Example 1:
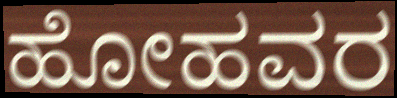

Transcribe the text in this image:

ಹೋಹವರ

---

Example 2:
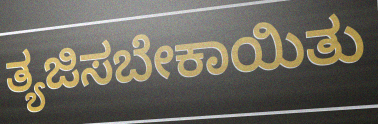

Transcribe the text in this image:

ತ್ಯಜಿಸಬೇಕಾಯಿತು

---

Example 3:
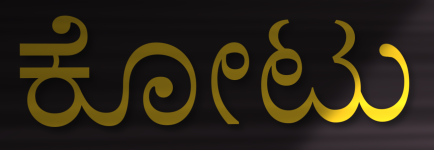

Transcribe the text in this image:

ಕೋಟು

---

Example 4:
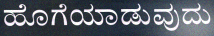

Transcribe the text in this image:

ಹೊಗೆಯಾಡುವುದು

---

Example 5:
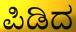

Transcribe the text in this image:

ಪಿಡಿದ